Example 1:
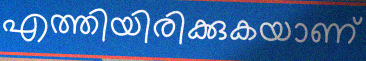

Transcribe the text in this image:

എത്തിയിരിക്കുകയാണ്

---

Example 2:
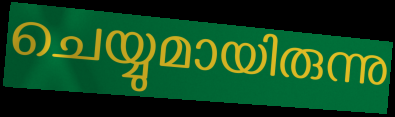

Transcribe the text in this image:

ചെയ്യുമായിരുന്നു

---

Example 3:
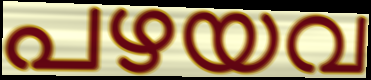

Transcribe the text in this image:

പഴയവ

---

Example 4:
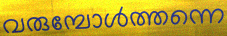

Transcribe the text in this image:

വരുമ്പോൾത്തന്നെ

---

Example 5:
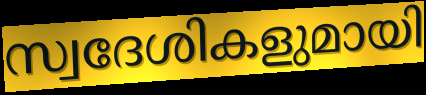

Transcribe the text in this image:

സ്വദേശികളുമായി